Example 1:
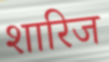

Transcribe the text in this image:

शारिज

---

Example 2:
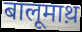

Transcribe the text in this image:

बालूमाथ़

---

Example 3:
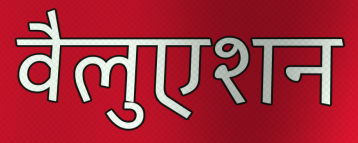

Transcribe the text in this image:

वैलुएशन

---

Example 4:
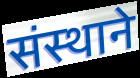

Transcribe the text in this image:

संस्थाने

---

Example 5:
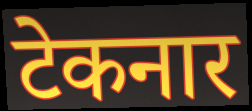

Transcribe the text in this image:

टेकनार